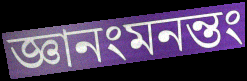
জ্ঞানংমনন্তং